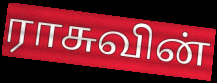
ராசுவின்